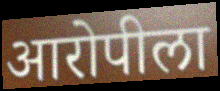
आरोपीला